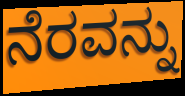
ನೆರವನ್ನು